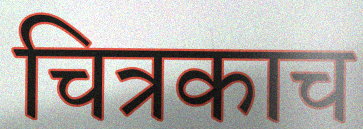
चित्रकाच